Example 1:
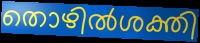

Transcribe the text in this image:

തൊഴിൽശക്തി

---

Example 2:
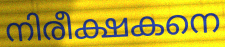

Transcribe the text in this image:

നിരീക്ഷകനെ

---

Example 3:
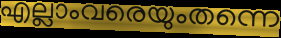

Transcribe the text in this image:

എല്ലാംവരെയുംതന്നെ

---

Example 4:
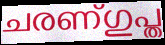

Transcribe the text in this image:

ചരണ്ഗുപ്ത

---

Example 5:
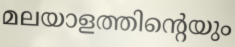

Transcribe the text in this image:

മലയാളത്തിന്റെയും